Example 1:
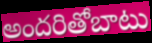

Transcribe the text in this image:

అందరితోబాటు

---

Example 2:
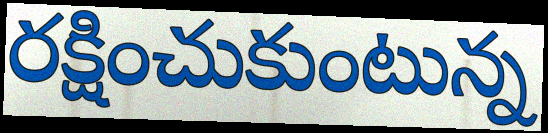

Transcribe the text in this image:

రక్షించుకుంటున్న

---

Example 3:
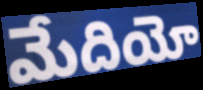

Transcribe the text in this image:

మేదియో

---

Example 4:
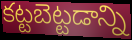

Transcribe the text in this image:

కట్టబెట్టడాన్ని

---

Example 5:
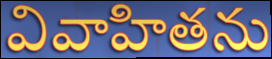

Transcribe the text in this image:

వివాహితను